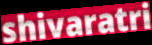
shivaratri